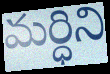
మర్ధిని